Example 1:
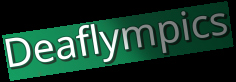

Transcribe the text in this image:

Deaflympics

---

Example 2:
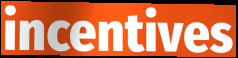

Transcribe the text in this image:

incentives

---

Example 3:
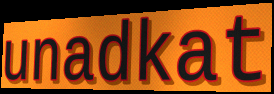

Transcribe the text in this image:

unadkat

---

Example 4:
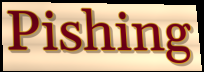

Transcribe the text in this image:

Pishing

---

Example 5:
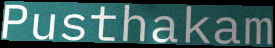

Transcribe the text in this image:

Pusthakam